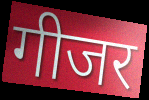
गीजर